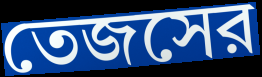
তেজসের